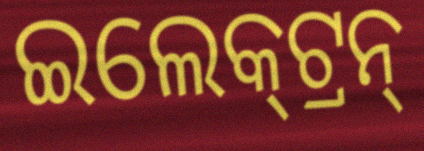
ଇଲେକ୍‍ଟ୍ରନ୍